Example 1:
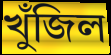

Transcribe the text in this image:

খুঁজিল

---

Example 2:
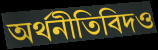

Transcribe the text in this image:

অর্থনীতিবিদও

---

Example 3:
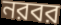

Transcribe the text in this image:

নরবর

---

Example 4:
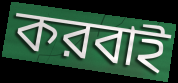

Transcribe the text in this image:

করবাই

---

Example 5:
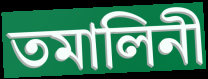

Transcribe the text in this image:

তমালিনী